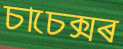
চাচেক্সৰ